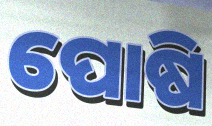
ପୋଷି